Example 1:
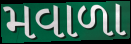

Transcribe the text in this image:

મવાળા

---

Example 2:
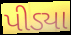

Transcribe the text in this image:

પીડ્યા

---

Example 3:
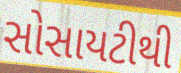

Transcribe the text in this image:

સોસાયટીથી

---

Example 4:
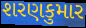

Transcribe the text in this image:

શરણકુમાર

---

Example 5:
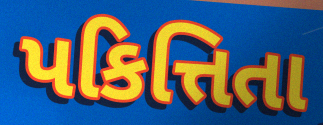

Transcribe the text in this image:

પકિત્તિતા